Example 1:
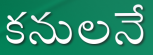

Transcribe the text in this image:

కనులనే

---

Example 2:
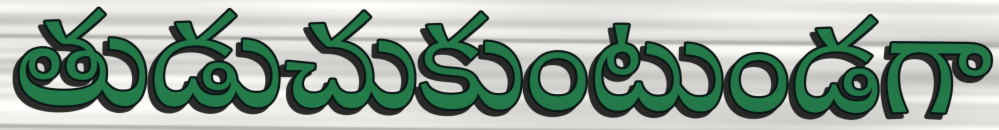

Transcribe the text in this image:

తుడుచుకుంటుండగా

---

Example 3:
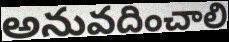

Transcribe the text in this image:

అనువదించాలి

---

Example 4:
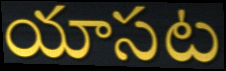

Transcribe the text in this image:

యాసట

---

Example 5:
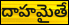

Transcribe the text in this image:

దాహమైతే